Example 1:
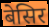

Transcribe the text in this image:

बेसिर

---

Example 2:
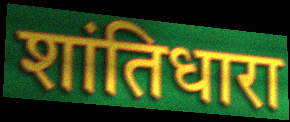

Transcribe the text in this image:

शांतिधारा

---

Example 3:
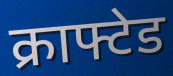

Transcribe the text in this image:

क्राफ्टेड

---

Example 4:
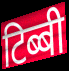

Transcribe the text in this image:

टिब्बी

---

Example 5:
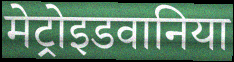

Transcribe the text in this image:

मेट्रोइडवानिया